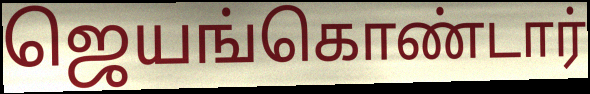
ஜெயங்கொண்டார்